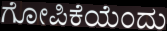
ಗೋಪಿಕೆಯೆಂದು